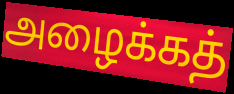
அழைக்கத்